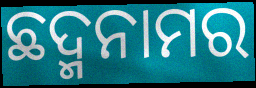
ଛଦ୍ମନାମର